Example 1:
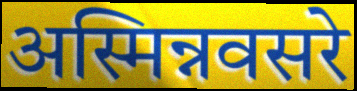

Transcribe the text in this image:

अस्मिन्नवसरे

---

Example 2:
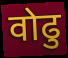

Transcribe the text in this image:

वोढु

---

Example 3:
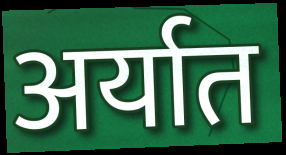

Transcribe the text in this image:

अर्यात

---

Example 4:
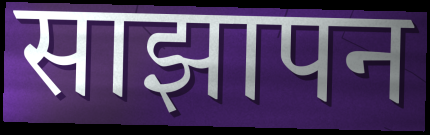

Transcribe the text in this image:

साझापन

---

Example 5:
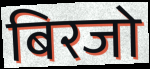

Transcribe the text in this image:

बिरजो